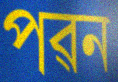
পৱন